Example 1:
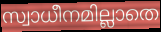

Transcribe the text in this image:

സ്വാധീനമില്ലാതെ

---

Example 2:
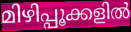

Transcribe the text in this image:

മിഴിപ്പൂക്കളിൽ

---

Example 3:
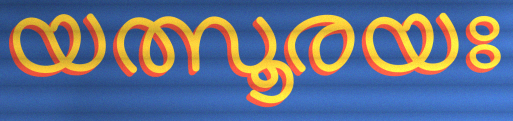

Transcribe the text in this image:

യത്സൂരയഃ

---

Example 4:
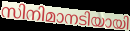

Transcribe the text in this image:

സിനിമാനടിയായി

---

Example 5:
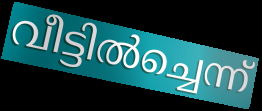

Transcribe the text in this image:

വീട്ടിൽച്ചെന്ന്